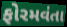
ફોરમવંતા